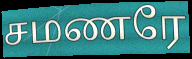
சமணரே